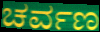
ಚರ್ವಣ